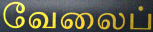
வேலைப்